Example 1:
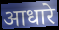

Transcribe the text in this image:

आधारे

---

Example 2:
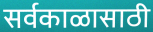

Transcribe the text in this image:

सर्वकाळासाठी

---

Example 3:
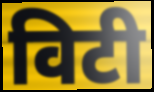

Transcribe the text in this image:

विटी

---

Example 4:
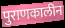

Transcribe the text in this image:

पुराणकालीन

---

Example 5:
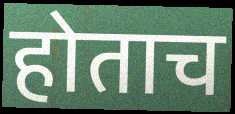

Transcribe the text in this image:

होताच